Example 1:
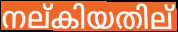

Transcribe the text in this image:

നല്കിയതില്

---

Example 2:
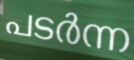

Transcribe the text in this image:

പടർന്ന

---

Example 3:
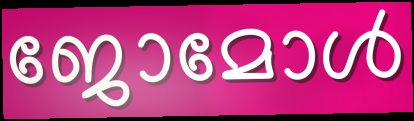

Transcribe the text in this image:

ജോമോൾ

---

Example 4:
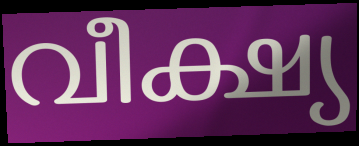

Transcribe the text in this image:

വീക്ഷ്യ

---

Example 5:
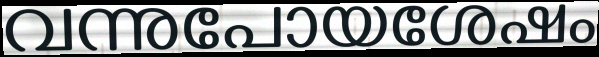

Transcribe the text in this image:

വന്നുപോയശേഷം